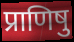
प्राणिषु